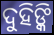
ଦୁହିଙ୍କି